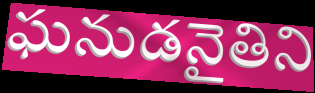
ఘనుడనైతిని